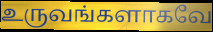
உருவங்களாகவே